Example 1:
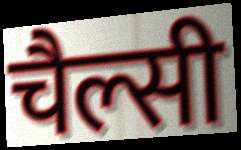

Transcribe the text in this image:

चैल्सी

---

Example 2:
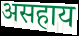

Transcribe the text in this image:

असहाय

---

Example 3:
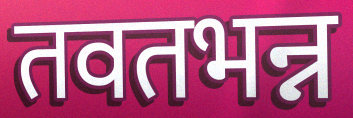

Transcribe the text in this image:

तवतभन्न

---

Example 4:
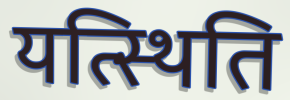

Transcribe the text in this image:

यत्स्थिति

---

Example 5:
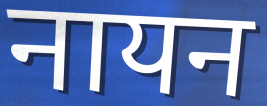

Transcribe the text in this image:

नायन